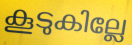
കൂടുകില്ലേ